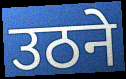
उठने